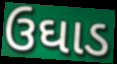
ઉઘાડ